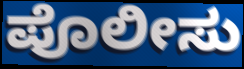
ಪೊಲೀಸು